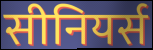
सीनियर्स